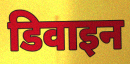
डिवाइन